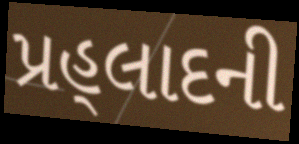
પ્રહ્‌લાદની